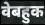
वेबहुक